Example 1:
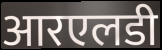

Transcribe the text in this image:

आरएलडी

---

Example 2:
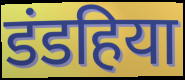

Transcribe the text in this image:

डंडहिया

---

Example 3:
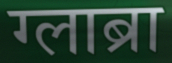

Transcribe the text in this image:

ग्लाब्रा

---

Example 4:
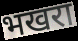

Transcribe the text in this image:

भखरा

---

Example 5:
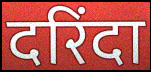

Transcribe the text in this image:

दरिंदा